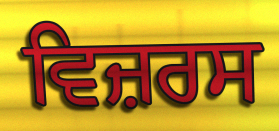
ਵਿਜ਼ਰਸ